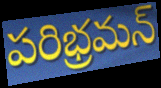
పరిభ్రమన్